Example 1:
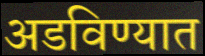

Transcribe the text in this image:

अडविण्यात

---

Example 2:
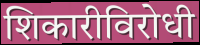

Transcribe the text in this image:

शिकारीविरोधी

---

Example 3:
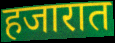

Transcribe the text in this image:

हजारात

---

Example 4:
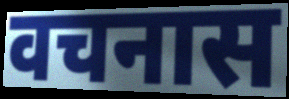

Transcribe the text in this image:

वचनास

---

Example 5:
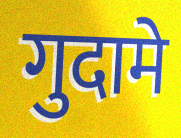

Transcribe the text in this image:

गुदामे